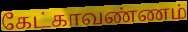
கேட்காவண்ணம்